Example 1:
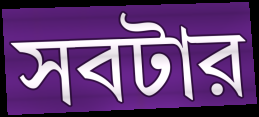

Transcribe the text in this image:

সবটার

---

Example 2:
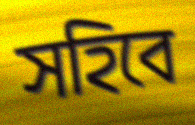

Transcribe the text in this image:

সহিবে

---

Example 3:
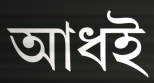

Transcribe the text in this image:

আধই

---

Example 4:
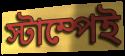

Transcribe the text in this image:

স্টাম্পেই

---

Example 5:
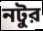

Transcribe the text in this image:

নটুর